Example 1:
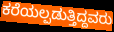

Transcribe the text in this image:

ಕರೆಯಲ್ಪಡುತ್ತಿದ್ದವರು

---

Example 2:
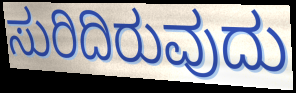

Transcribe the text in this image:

ಸುರಿದಿರುವುದು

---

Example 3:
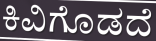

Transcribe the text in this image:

ಕಿವಿಗೊಡದೆ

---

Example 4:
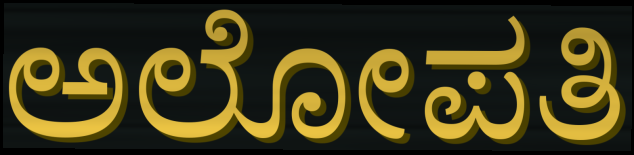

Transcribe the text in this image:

ಅಲೋಪತಿ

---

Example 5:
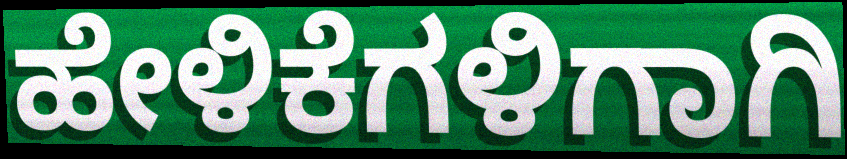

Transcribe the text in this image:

ಹೇಳಿಕೆಗಳಿಗಾಗಿ